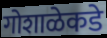
गोशाळेकडे